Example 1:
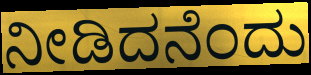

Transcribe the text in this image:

ನೀಡಿದನೆಂದು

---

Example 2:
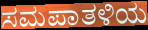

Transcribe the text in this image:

ಸಮಪಾತಳಿಯ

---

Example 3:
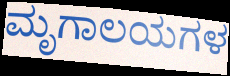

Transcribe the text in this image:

ಮೃಗಾಲಯಗಳ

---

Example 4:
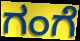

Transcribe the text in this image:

ಗಂಗೆ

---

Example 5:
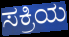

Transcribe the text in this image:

ಸಕ್ರಿಯ